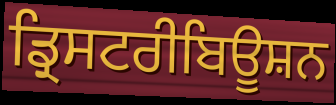
ਡ੍ਰਿਸਟਰੀਬਿਊਸ਼ਨ